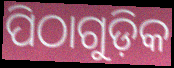
ପିଠାଗୁଡ଼ିକ